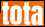
tota